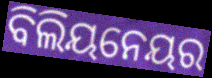
ବିଲିୟନେୟର